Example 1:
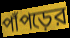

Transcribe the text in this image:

পাঁপড়ের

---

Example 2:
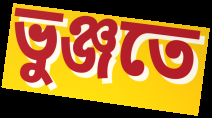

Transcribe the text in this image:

ভুঞ্জতে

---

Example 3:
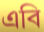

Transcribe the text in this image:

এবি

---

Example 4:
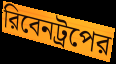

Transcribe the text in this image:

রিবেনট্রপের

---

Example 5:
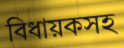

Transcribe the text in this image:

বিধায়কসহ